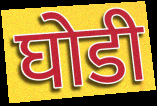
घोडी